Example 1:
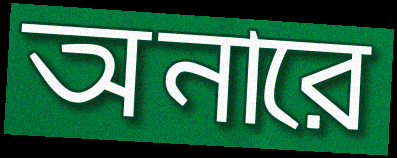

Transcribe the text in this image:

অনারে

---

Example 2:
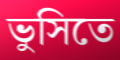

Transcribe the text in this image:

ভুসিতে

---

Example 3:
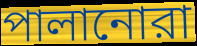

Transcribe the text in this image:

পালানোরা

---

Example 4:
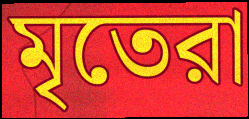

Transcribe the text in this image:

মৃতেরা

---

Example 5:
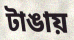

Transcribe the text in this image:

টাঙায়